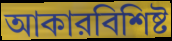
আকারবিশিষ্ট